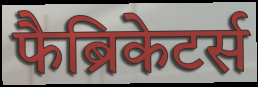
फैब्रिकेटर्स